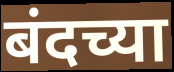
बंदच्या